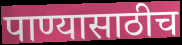
पाण्यासाठीच